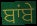
ਬਾਂਬੇ